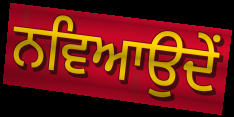
ਨਵਿਆਉਦੇਂ